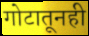
गोटातूनही